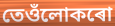
তেওঁলোকৰো